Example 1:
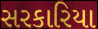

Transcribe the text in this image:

સરકારિયા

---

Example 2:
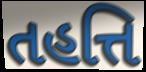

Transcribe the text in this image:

તહત્તિ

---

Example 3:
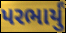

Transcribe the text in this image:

પરભાર્યું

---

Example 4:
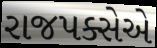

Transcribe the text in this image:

રાજપક્સેએ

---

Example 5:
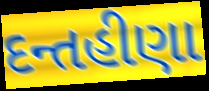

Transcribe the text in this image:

દન્તહીણા